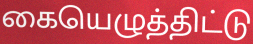
கையெழுத்திட்டு